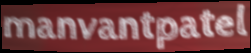
manvantpatel